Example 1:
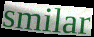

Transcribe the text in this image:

smilar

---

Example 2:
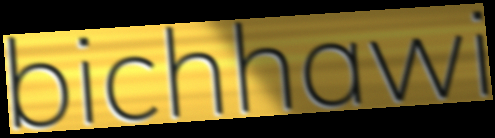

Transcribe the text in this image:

bichhawi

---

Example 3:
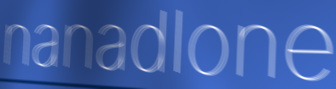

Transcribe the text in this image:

nanadlone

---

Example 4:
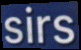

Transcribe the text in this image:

sirs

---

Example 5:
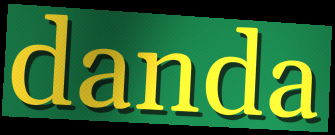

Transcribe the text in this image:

danda